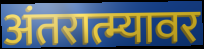
अंतरात्म्यावर